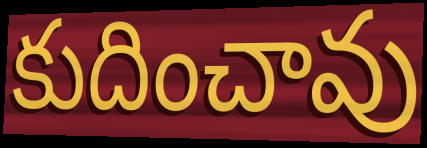
కుదించావు